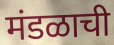
मंडळाची